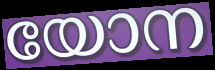
യോന